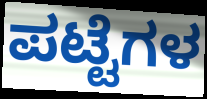
ಪಟ್ಟೆಗಳ